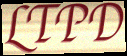
LTPD